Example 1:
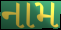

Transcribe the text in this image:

નામ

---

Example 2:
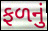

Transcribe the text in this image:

ફળનું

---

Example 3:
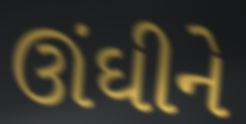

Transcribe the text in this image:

ઊંઘીને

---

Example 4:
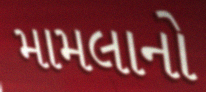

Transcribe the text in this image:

મામલાનો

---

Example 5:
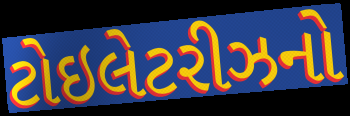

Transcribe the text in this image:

ટોઇલેટરીઝનો